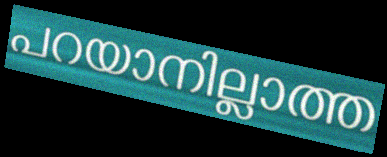
പറയാനില്ലാത്ത